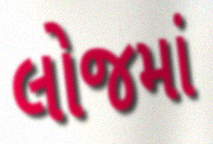
લોજમાં